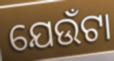
ଯେଉଁଟା